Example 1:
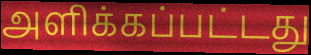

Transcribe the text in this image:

அளிக்கப்பட்டது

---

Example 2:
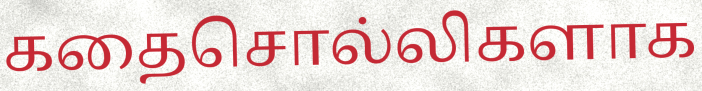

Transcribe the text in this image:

கதைசொல்லிகளாக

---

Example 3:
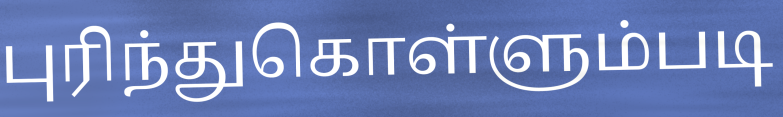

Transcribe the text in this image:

புரிந்துகொள்ளும்படி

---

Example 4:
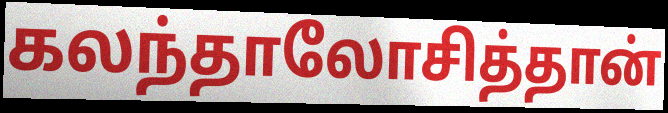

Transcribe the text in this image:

கலந்தாலோசித்தான்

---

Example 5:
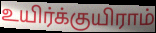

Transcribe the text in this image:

உயிர்க்குயிராம்